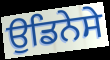
ਉਡਿਨੇਸੇ